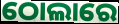
ଠୋଲାରେ